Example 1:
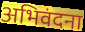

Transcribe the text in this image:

अभिवंदना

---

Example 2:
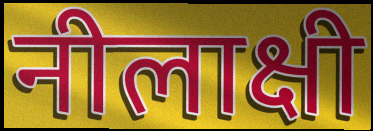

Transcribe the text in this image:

नीलाक्षी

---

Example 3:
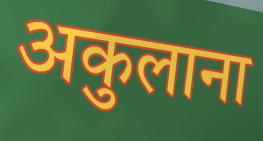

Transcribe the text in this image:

अकुलाना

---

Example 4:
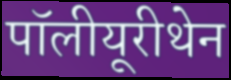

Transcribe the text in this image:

पॉलीयूरीथेन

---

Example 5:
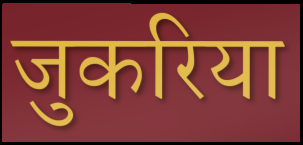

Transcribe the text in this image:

जुकरिया